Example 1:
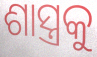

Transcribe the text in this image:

ଶାସ୍ତ୍ରକୁ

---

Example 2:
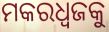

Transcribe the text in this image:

ମକରଧ୍ୱଜକୁ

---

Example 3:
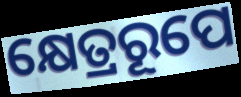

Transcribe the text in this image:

କ୍ଷେତ୍ରରୂପେ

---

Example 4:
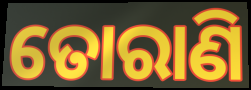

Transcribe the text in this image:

ତୋରାଣି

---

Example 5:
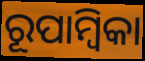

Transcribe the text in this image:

ରୂପାମ୍ବିକା